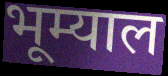
भूम्याल